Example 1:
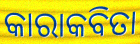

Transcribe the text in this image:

କାରାକବିତା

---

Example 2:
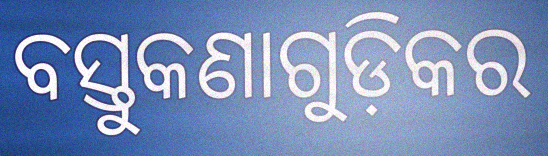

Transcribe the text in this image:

ବସ୍ତୁକଣାଗୁଡ଼ିକର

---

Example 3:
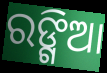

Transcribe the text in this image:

ରଙ୍ଗିଆ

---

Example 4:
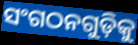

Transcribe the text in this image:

ସଂଗଠନଗୁଡ଼ିକୁ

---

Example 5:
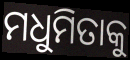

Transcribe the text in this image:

ମଧୁମିତାକୁ